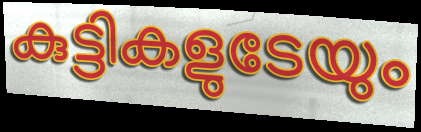
കുട്ടികളുടേയും